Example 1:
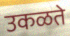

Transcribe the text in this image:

उकळते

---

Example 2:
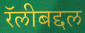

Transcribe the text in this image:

रॅलीबद्दल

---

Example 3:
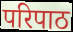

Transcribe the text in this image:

परिपाठ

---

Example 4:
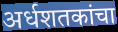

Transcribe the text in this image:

अर्धशतकांचा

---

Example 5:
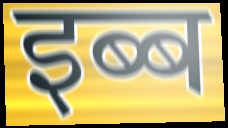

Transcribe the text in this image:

इब्ब